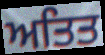
ਅਤਿਤ